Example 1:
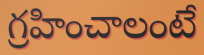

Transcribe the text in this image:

గ్రహించాలంటే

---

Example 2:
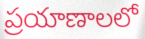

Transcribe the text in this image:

ప్రయాణాలలో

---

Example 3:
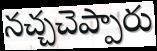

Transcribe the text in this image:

నచ్చచెప్పారు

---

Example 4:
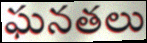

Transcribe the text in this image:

ఘనతలు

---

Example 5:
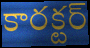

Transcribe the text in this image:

కారక్టర్